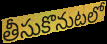
తీసుకొనుటలో